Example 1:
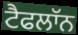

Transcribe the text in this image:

ਟੈਫਲਾੱਨ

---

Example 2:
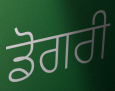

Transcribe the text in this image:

ਡੋਗਰੀ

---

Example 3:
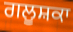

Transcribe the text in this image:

ਗਲੂਸ਼ਕਾ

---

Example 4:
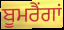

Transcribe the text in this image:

ਬੂਮਰੈਂਗਾਂ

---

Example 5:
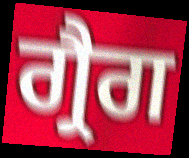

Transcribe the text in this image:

ਗ੍ਰੈਗ